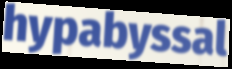
hypabyssal